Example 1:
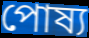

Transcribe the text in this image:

পোষ্য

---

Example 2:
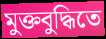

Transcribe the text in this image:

মুক্তবুদ্ধিতে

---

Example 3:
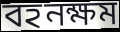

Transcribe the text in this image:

বহনক্ষম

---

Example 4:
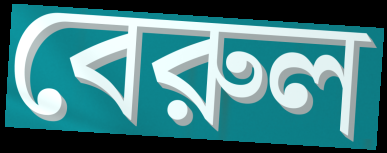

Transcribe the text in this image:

বেরুল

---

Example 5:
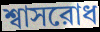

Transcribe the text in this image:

শ্বাসরোধ